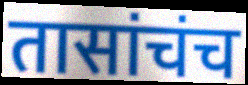
तासांचंच